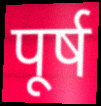
पूर्ष